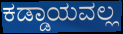
ಕಡ್ಡಾಯವಲ್ಲ